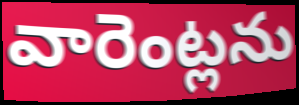
వారెంట్లను